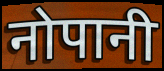
नोपानी